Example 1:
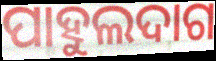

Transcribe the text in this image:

ପାହୁଲଦାଗ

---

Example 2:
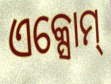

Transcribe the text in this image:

ଏକ୍ସୋମ୍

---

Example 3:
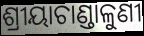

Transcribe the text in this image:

ଶ୍ରୀୟାଚାଣ୍ଡାଳୁଣୀ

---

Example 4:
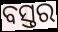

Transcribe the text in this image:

ବସ୍ତର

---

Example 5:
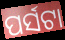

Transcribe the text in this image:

ପର୍ସଟା